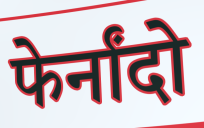
फेर्नांदो